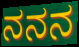
ನನನ